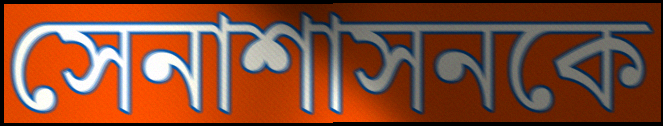
সেনাশাসনকে